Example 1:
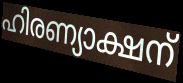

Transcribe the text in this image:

ഹിരണ്യാക്ഷന്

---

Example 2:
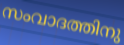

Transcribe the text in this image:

സംവാദത്തിനു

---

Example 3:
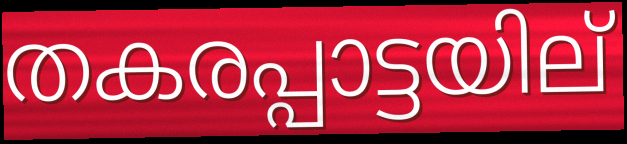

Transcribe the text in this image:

തകരപ്പാട്ടയില്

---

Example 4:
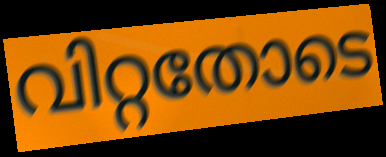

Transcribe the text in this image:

വിറ്റതോടെ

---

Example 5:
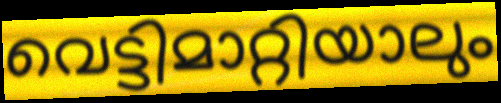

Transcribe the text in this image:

വെട്ടിമാറ്റിയാലും